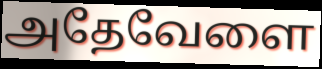
அதேவேளை